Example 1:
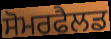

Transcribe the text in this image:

ਸੋਮਰਫੈਲਡ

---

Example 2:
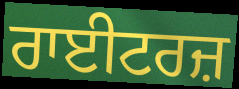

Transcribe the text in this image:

ਰਾਈਟਰਜ਼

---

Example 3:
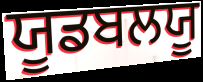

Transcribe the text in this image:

ਯੂਡਬਲਯੂ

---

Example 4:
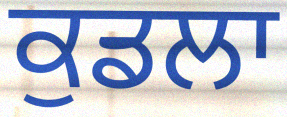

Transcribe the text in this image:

ਕੁਡਲਾ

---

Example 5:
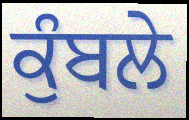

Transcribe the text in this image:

ਕੁੰਬਲੇ